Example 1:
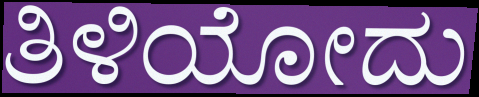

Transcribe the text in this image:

ತಿಳಿಯೋದು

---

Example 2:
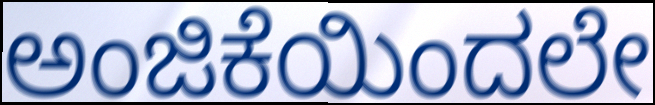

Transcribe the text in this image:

ಅಂಜಿಕೆಯಿಂದಲೇ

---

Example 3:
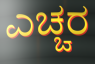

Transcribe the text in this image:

ಎಚ್ಚರ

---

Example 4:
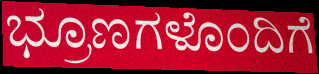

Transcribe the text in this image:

ಭ್ರೂಣಗಳೊಂದಿಗೆ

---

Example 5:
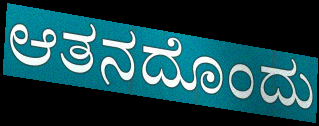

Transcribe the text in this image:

ಆತನದೊಂದು